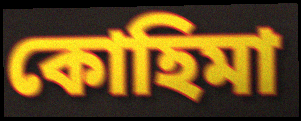
কোহিমা